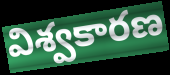
విశ్వకారణ